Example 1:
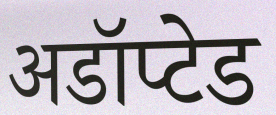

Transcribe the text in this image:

अडॉप्टेड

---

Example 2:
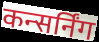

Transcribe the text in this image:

कन्सर्निंग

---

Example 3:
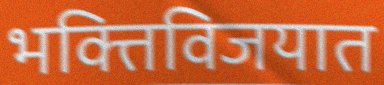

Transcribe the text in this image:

भक्तिविजयात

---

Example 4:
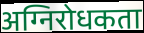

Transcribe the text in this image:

अग्निरोधकता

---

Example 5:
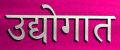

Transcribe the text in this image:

उद्योगात